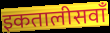
इकतालीसवाँ